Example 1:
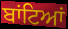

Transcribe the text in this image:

ਬਾਂਟਿਆਂ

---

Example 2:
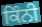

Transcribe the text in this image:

ਕਿੰਨੀ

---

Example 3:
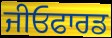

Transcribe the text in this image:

ਜੀਓਫਾਰਡ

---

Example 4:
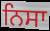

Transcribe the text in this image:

ਨਿਸਾ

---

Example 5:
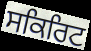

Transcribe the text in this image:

ਸਕਿਰਿਟ